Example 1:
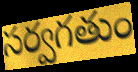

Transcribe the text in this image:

సర్వగతుం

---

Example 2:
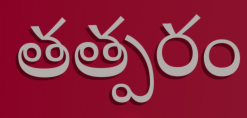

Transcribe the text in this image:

తత్పరం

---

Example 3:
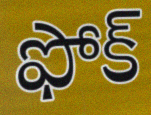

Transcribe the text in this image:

ఫోక్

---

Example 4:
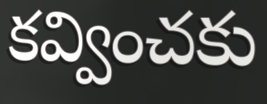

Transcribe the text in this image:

కవ్వించకు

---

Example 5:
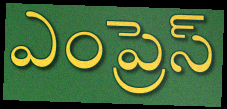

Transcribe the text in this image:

ఎంప్రెస్